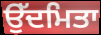
ਉੱਦਮਿਤਾ